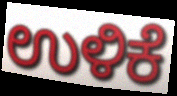
ಉಳಿಕೆ